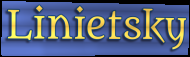
Linietsky